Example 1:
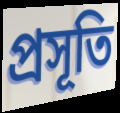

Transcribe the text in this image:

প্রসূতি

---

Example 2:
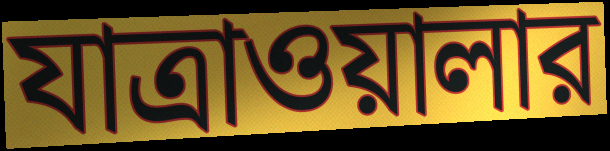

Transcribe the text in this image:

যাত্রাওয়ালার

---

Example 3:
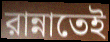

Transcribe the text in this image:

রান্নাতেই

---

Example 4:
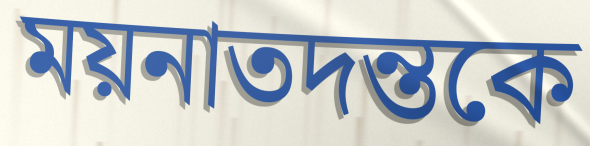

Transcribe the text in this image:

ময়নাতদন্তকে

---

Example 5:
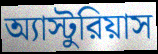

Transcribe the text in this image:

অ্যাস্টুরিয়াস